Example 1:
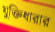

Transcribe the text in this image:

যুক্তিধারার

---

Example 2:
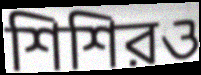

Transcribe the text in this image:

শিশিরও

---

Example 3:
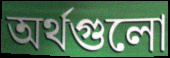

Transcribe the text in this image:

অর্থগুলো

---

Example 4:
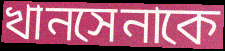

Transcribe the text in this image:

খানসেনাকে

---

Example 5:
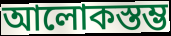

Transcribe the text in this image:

আলোকস্তম্ভ